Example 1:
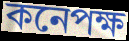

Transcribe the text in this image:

কনেপক্ষ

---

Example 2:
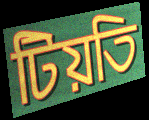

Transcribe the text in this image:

টিয়তি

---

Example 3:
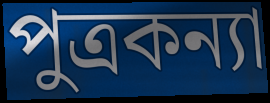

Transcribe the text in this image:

পুত্রকন্যা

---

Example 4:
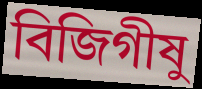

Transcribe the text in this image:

বিজিগীষু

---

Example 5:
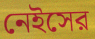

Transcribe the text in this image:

নেইসের